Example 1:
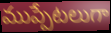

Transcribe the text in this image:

ముప్పేటలుగా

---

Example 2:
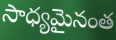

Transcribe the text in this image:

సాధ్యమైనంత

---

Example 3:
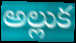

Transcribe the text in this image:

అల్లుక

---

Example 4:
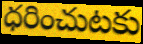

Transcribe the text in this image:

ధరించుటకు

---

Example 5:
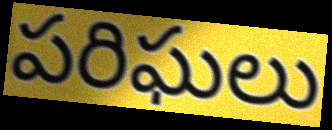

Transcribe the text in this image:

పరిఘలు